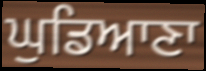
ਘੁਡਿਆਣਾ